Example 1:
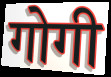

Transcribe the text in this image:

गोगी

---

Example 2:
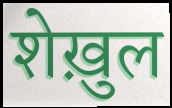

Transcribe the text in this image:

शेख़ुल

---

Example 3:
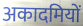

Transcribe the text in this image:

अकादमियों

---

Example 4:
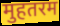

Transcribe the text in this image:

मुहतरम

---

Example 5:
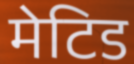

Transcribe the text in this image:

मेटिड